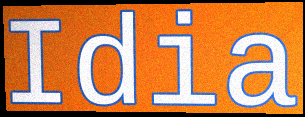
Idia